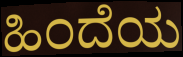
ಹಿಂದೆಯ